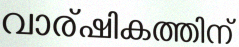
വാര്ഷികത്തിന്